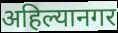
अहिल्यानगर